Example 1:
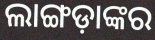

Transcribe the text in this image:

ଲାଙ୍ଗଡ଼ାଙ୍କର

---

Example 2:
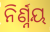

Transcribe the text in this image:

ନିର୍ଣ୍ନୟ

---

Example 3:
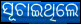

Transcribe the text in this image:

ସୂଚାଇଥିଲେ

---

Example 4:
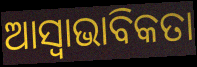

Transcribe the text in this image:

ଆସ୍ବାଭାବିକତା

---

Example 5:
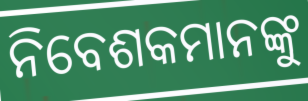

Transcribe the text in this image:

ନିବେଶକମାନଙ୍କୁ